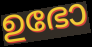
ഉഭോ